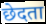
छेदता